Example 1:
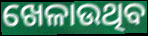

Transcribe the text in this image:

ଖେଳାଉଥିବ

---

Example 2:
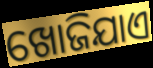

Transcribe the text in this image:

ଖୋଜିଯାଏ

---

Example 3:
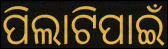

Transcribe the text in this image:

ପିଲାଟିପାଇଁ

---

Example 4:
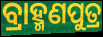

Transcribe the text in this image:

ବ୍ରାହ୍ମଣପୁତ୍ର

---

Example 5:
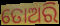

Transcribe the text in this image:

ତୋଅରି